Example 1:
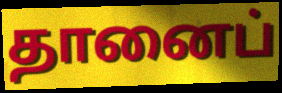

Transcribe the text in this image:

தானைப்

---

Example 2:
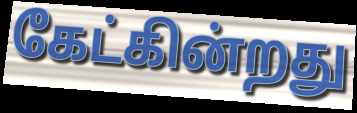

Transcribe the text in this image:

கேட்கின்றது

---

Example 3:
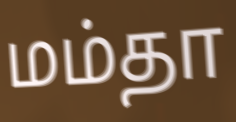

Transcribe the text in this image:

மம்தா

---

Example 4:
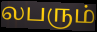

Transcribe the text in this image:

லபரும்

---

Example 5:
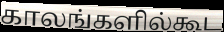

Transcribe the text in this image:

காலங்களில்கூட